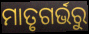
ମାତୃଗର୍ଭରୁ